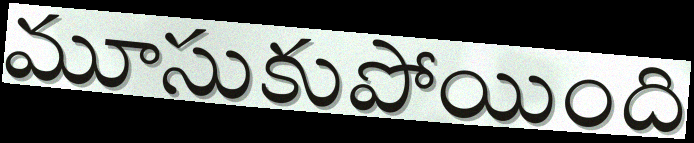
మూసుకుపోయింది